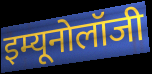
इम्यूनोलॉजी